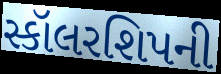
સ્કૉલરશિપની